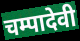
चम्पादेवी